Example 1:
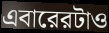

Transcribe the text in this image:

এবারেরটাও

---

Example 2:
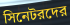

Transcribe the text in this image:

সিনেটরদের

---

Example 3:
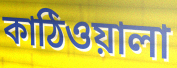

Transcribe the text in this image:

কাঠিওয়ালা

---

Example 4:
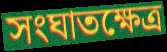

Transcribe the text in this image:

সংঘাতক্ষেত্র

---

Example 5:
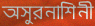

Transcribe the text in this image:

অসুরনাশিনী